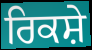
ਰਿਕਸ਼ੇ